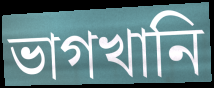
ভাগখানি